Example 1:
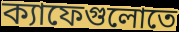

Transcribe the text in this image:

ক্যাফেগুলোতে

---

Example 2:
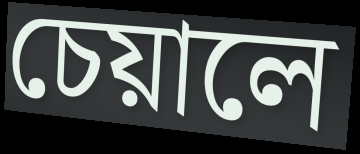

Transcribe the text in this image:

চেয়ালে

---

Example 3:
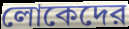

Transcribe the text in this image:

লোকেদের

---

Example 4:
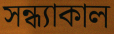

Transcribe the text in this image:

সন্ধ্যাকাল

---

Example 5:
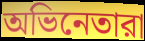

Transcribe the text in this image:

অভিনেতারা